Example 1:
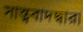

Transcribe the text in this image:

সান্ত্ববাদদ্বারা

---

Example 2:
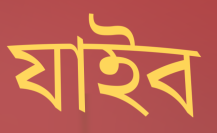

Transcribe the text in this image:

যাইব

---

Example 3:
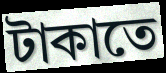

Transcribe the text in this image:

টাকাতে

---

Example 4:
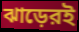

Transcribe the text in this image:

ঝাড়েরই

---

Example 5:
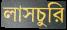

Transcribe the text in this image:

লাসচুরি